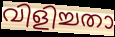
വിളിച്ചതാ